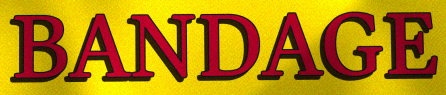
BANDAGE